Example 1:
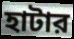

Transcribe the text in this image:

হাটার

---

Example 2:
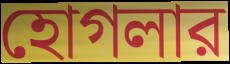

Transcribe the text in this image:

হোগলার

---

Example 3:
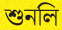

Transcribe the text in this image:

শুনলি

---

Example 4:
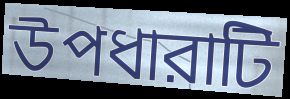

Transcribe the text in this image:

উপধারাটি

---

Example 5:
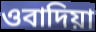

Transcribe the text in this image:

ওবাদিয়া